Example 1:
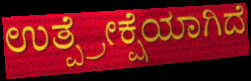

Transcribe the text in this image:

ಉತ್ಪ್ರೇಕ್ಷೆಯಾಗಿದೆ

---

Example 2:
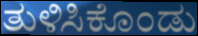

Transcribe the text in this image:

ತುಳಿಸಿಕೊಂಡು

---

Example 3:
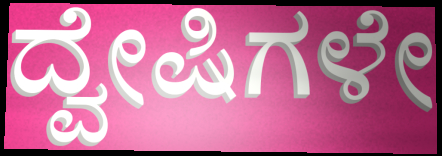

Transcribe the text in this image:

ದ್ವೇಷಿಗಳೇ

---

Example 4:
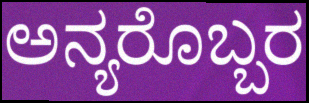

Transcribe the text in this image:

ಅನ್ಯರೊಬ್ಬರ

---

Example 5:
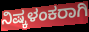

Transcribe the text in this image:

ನಿಷ್ಕಳಂಕರಾಗಿ